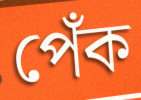
পেঁক